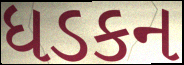
ધડકન